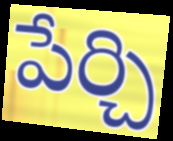
పేర్చి